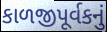
કાળજીપૂર્વકનું